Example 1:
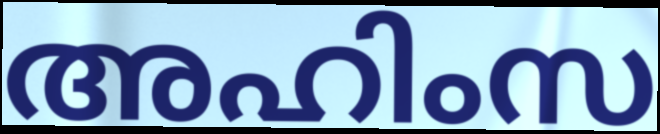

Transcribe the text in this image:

അഹിംസ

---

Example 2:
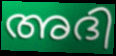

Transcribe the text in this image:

അദി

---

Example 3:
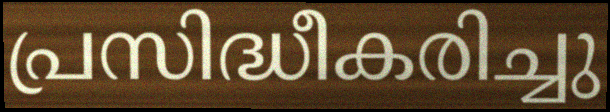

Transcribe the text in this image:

പ്രസിദ്ധീകരിച്ചു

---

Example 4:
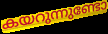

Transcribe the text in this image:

കയറുന്നുണ്ടോ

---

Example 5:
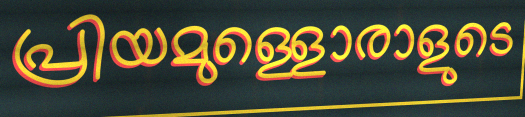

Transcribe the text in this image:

പ്രിയമുള്ളൊരാളുടെ